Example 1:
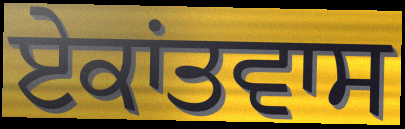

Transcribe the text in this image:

ਏਕਾਂਤਵਾਸ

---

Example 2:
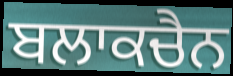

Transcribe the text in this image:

ਬਲਾਕਚੈਨ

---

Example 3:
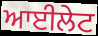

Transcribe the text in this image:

ਆਈਲੇਟ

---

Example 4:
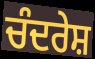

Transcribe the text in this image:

ਚੰਦਰੇਸ਼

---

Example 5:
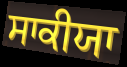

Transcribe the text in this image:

ਸਾਕੀਯਾ